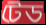
টেড